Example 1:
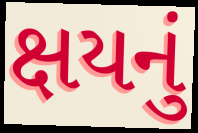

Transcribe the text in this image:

ક્ષયનું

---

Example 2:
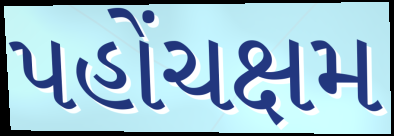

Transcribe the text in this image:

પહોંચક્ષમ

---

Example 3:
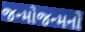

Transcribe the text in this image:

જન્મોજન્મનો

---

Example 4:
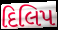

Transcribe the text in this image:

દિલિપ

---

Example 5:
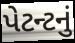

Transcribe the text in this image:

પેટન્ટનું